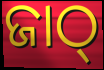
ଜାଠ୍